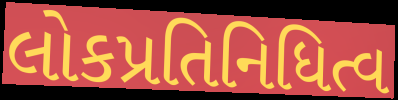
લોકપ્રતિનિધિત્વ